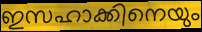
ഇസഹാക്കിനെയും